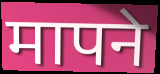
मापने